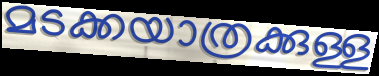
മടക്കയാത്രക്കുള്ള